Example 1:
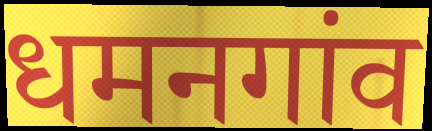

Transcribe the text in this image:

धमनगांव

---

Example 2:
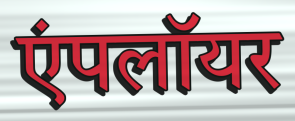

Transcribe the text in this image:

एंपलॉयर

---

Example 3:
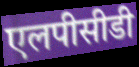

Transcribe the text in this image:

एलपीसीडी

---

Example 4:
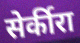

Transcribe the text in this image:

सेर्कीरा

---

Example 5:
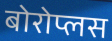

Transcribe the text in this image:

बोरोप्लस